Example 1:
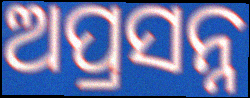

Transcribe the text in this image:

ଅପ୍ରସନ୍ନ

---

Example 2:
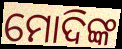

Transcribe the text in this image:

ମୋଦିଙ୍କ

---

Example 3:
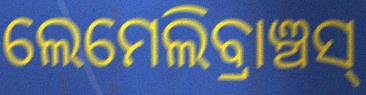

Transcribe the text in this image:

ଲେମେଲିବ୍ରାଞ୍ଚସ୍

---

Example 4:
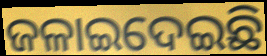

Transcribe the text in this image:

ଜଳାଇଦେଇଛି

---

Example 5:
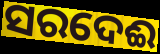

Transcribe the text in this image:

ସରଦେଈ